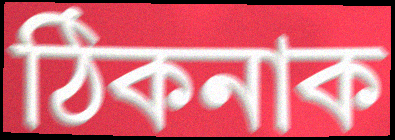
ঠিকনাক